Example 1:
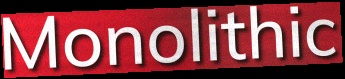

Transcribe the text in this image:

Monolithic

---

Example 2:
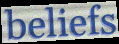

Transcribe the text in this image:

beliefs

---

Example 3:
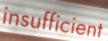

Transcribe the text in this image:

insufficient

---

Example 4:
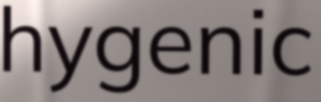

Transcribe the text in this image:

hygenic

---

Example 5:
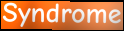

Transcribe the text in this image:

Syndrome